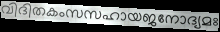
വിദിതകംസസഹായജനോദ്യമഃ